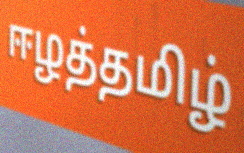
ஈழத்தமிழ்